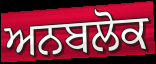
ਅਨਬਲੋਕ